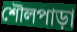
শৌলপাড়া